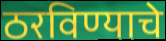
ठरविण्याचे